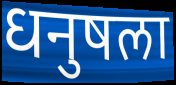
धनुषला